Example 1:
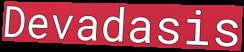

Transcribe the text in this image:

Devadasis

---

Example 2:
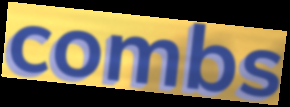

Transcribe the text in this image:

combs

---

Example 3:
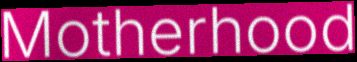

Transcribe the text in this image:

Motherhood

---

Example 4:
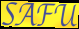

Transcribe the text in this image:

SAFU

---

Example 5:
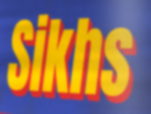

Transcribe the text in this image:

Sikhs